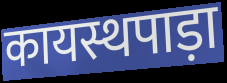
कायस्थपाड़ा